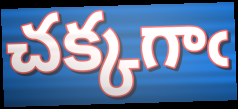
చక్కగాఁ